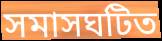
সমাসঘটিত